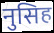
नुसिह